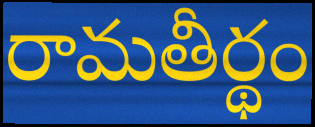
రామతీర్థం